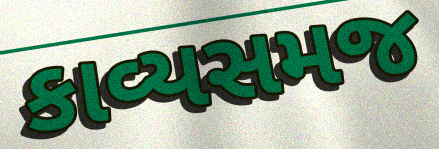
કાવ્યસમજ